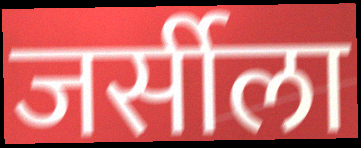
जर्सीला